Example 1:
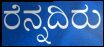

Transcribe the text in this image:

ರೆನ್ನದಿರು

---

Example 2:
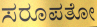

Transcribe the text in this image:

ಸರೂಪತೋ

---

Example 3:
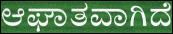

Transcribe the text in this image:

ಆಘಾತವಾಗಿದೆ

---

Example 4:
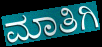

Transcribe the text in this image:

ಮಾತಿಗಿ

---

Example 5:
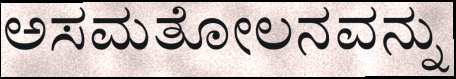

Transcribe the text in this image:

ಅಸಮತೋಲನವನ್ನು